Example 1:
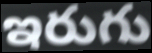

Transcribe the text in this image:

ఇరుగు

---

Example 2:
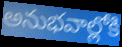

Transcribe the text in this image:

అనుభవాల్లోకి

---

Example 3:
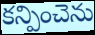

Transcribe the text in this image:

కన్పించెను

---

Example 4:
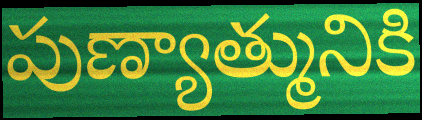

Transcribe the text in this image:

పుణ్యాత్మునికి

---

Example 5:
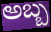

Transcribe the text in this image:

అబ్బ